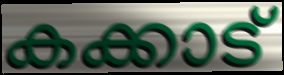
കക്കാട്